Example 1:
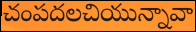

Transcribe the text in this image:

చంపదలచియున్నావా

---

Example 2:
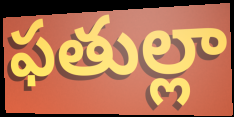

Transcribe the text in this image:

ఫతుల్లా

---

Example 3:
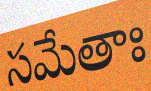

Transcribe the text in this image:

సమేతాః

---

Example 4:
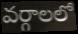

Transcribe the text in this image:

వర్గాలలో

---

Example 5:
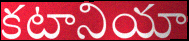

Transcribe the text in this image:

కటానియా